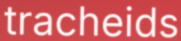
tracheids